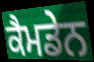
ਕੈਮਡੇਨ